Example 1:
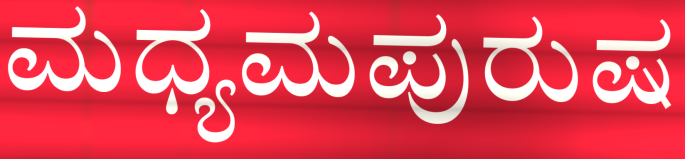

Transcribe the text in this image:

ಮಧ್ಯಮಪುರುಷ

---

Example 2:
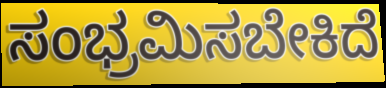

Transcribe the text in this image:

ಸಂಭ್ರಮಿಸಬೇಕಿದೆ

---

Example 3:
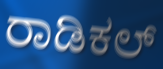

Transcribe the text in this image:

ರಾಡಿಕಲ್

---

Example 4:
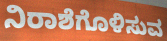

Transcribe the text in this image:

ನಿರಾಶೆಗೊಳಿಸುವ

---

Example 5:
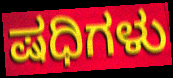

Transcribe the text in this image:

ಷಧಿಗಳು